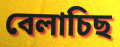
বেলাচিছ